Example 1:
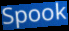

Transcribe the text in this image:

Spook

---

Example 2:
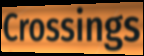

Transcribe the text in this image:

Crossings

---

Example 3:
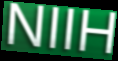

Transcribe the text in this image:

NIIH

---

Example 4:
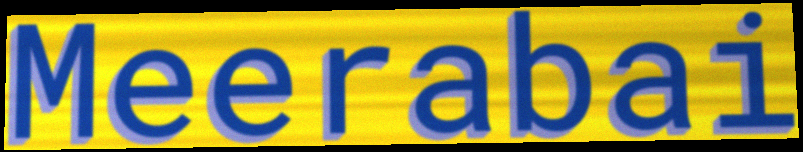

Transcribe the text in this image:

Meerabai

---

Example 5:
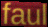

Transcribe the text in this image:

faul